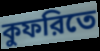
কুফরিতে